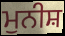
ਮੁਨੀਸ਼